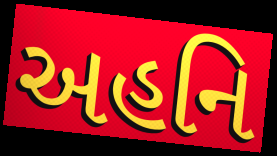
અહનિ